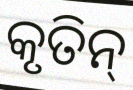
କୃତିନ୍